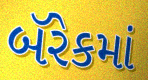
બૅરેકમાં